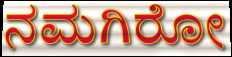
ನಮಗಿರೋ